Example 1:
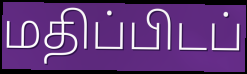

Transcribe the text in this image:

மதிப்பிடப்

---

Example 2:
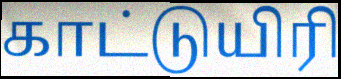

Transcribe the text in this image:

காட்டுயிரி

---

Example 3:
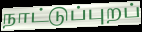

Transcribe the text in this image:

நாட்டுப்புறப்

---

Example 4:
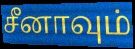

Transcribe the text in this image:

சீனாவும்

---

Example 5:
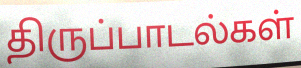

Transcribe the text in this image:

திருப்பாடல்கள்